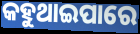
କହୁଥାଇପାରେ